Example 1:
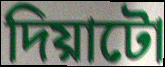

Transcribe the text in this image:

দিয়াটো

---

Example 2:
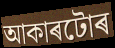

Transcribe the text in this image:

আকাৰটোৰ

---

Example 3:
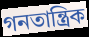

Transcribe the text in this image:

গনতান্ত্ৰিক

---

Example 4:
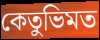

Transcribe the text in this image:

কেতুভিমত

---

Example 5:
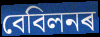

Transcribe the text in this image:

বেবিলনৰ